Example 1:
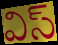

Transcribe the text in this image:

విస్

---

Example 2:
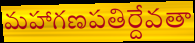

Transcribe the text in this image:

మహాగణపతిర్దేవతా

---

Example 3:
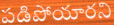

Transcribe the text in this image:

పడిపోయారని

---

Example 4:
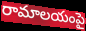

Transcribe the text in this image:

రామాలయంపై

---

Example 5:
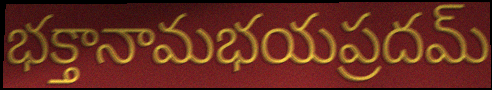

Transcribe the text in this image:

భక్తానామభయప్రదమ్